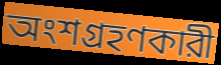
অংশগ্রহণকারী